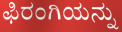
ಫಿರಂಗಿಯನ್ನು